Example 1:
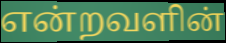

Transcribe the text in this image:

என்றவளின்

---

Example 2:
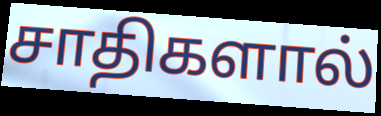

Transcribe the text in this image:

சாதிகளால்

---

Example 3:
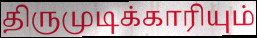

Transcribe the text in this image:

திருமுடிக்காரியும்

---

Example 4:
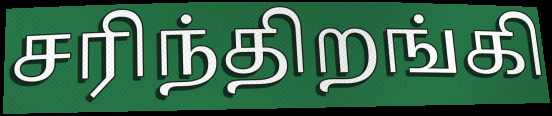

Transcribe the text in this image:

சரிந்திறங்கி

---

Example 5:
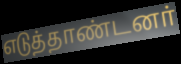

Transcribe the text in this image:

எடுத்தாண்டனர்